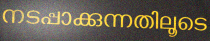
നടപ്പാക്കുന്നതിലൂടെ